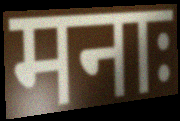
मनाः